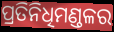
ପ୍ରତିନିଧିମଣ୍ଡଳର